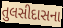
તુલસીદાસના